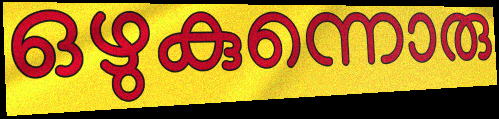
ഒഴുകുന്നൊരു